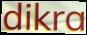
dikra